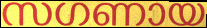
സഗണായ